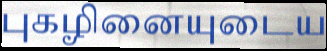
புகழினையுடைய